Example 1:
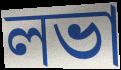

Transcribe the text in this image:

লভা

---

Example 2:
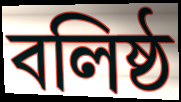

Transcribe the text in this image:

বলিষ্ঠ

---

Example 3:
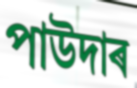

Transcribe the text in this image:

পাউদাৰ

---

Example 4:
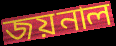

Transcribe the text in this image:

জয়নাল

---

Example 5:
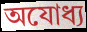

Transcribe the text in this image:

অযোধ্য